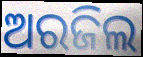
ଅରଜିଲ